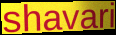
shavari